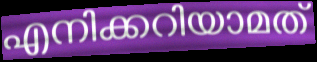
എനിക്കറിയാമത്